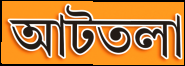
আটতলা